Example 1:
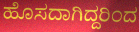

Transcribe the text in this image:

ಹೊಸದಾಗಿದ್ದರಿಂದ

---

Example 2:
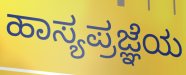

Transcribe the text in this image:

ಹಾಸ್ಯಪ್ರಜ್ಞೆಯ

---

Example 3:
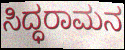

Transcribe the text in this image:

ಸಿದ್ಧರಾಮನ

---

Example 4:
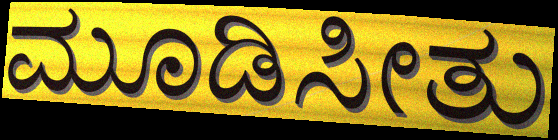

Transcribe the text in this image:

ಮೂಡಿಸೀತು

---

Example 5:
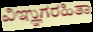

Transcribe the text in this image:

ವಿಞ್ಞುಗರಹಿತಾ